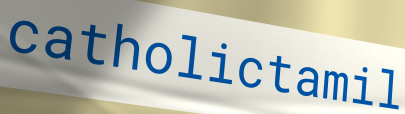
catholictamil